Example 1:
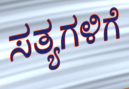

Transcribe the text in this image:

ಸತ್ಯಗಳಿಗೆ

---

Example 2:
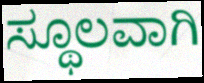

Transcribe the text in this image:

ಸ್ಥೂಲವಾಗಿ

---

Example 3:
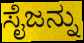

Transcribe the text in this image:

ಸೈಜನ್ನು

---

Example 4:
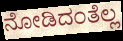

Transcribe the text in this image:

ನೋಡಿದಂತೆಲ್ಲ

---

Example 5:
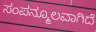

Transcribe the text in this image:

ಸಂಪನ್ಮೂಲವಾಗಿದೆ